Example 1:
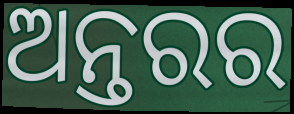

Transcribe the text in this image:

ଅନ୍ତରର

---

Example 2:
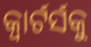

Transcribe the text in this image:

କ୍ୱାର୍ଟର୍ସକୁ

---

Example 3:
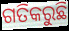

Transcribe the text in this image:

ଗତିକରୁଛି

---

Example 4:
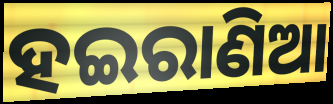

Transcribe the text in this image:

ହଇରାଣିଆ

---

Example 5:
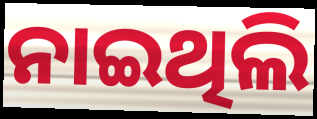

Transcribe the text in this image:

ନାଇଥିଲି